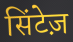
सिंटेज़